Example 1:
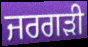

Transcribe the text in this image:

ਜਰਗੜੀ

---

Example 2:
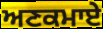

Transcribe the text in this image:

ਅਣਕਮਾਏ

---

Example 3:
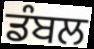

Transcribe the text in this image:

ਡੰਬਲ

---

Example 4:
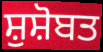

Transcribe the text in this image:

ਸ਼ੁਸ਼ੋਬਤ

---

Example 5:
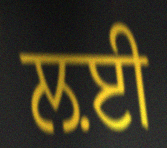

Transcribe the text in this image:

ਲ਼ਈ